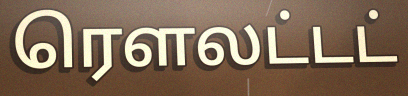
ரௌலட்டட்